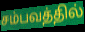
சம்பவத்தில்